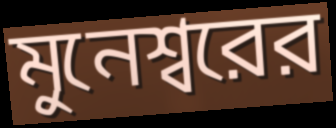
মুনেশ্বরের